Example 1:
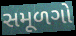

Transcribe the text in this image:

સમૂળગો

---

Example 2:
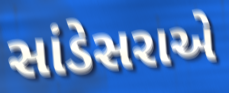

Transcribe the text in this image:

સાંડેસરાએ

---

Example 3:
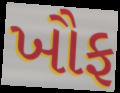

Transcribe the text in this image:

ખૌફ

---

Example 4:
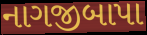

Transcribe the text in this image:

નાગજીબાપા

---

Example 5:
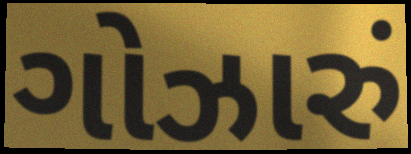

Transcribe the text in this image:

ગોઝારું